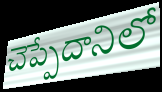
చెప్పేదానిలో